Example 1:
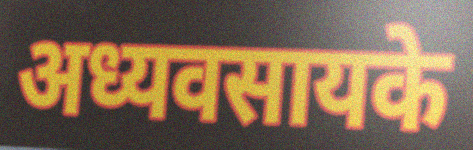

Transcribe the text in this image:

अध्यवसायके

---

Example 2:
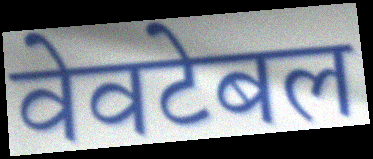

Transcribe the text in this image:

वेवटेबल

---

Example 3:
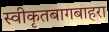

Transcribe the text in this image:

स्वीकृतबागबाहरा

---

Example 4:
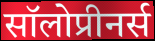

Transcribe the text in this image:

सॉलोप्रीनर्स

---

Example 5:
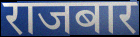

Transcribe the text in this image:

राजबार